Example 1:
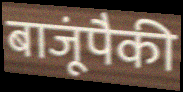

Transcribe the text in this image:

बाजूंपैकी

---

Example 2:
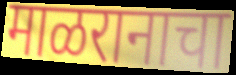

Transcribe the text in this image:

माळरानाचा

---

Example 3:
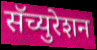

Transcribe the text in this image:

सॅच्युरेशन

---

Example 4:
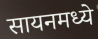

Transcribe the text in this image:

सायनमध्ये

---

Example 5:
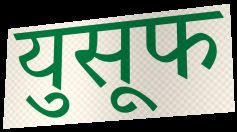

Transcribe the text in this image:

युसूफ